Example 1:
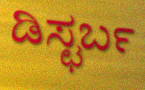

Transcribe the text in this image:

ಡಿಸ್ಟರ್ಬ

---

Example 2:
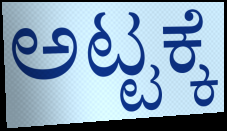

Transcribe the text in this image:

ಅಟ್ಟಕ್ಕೆ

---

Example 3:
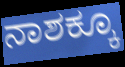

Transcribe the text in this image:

ನಾಶಕ್ಕೂ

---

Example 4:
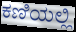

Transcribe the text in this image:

ಕಣಿಯಲ್ಲಿ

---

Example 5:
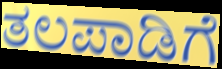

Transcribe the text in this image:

ತಲಪಾಡಿಗೆ